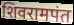
शिवरामपंत